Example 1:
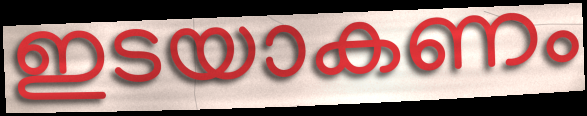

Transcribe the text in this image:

ഇടയാകണം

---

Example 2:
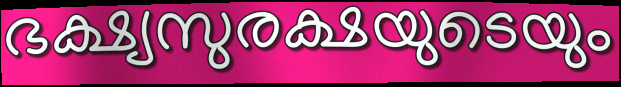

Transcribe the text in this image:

ഭക്ഷ്യസുരക്ഷയുടെയും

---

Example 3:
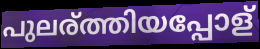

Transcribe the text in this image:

പുലര്ത്തിയപ്പോള്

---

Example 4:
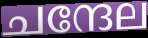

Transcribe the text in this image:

ചന്ദേല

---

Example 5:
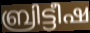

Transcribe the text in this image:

ബ്രിട്ടീഷ